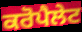
ਕਰੋਪੈਲੇਟ